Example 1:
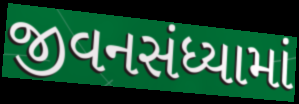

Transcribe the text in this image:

જીવનસંધ્યામાં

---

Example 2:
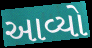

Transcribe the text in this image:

આવ્યો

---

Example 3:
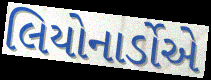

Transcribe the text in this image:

લિયોનાર્ડોએ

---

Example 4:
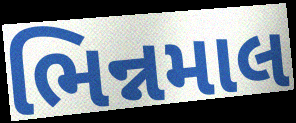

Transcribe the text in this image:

ભિન્નમાલ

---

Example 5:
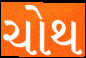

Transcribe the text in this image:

ચોથ